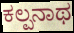
ಕಲ್ಪನಾಥ